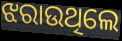
ଝରାଉଥିଲେ